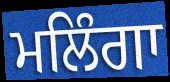
ਮਲਿੰਗਾ